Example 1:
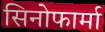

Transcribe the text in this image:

सिनोफार्मा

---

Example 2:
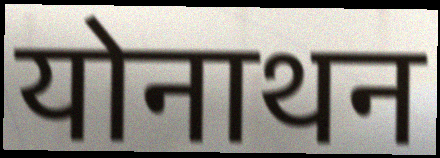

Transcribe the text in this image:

योनाथन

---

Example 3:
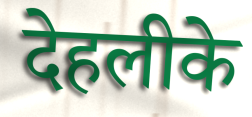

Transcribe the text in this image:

देहलीके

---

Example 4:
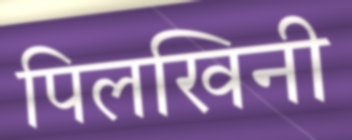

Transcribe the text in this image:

पिलखिनी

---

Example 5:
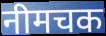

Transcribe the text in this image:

नीमचक